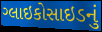
ગ્લાઇકોસાઇડનું